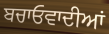
ਬਚਾਓਵਾਦੀਆਂ